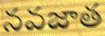
నవజాత